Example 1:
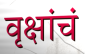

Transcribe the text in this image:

वृक्षांचं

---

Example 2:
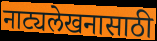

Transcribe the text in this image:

नाट्यलेखनासाठी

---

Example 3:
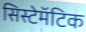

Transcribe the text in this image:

सिस्टेमॅटिक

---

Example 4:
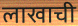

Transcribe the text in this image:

लाखाची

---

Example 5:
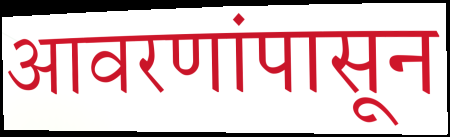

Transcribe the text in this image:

आवरणांपासून